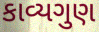
કાવ્યગુણ